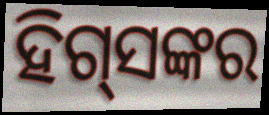
ହିଗ୍‌ସଙ୍କର